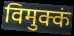
विमुक्कं